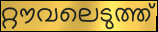
റ്റൗവലെടുത്ത്